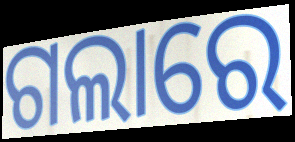
ଗଲାରେ